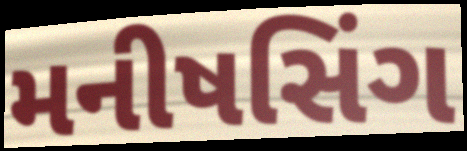
મનીષસિંગ